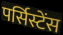
पर्सिस्टेंस